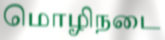
மொழிநடை